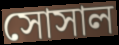
সোসাল